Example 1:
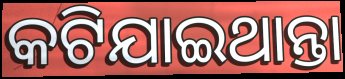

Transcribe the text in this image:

କଟିଯାଇଥାନ୍ତା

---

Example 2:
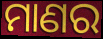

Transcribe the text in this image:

ମାଣର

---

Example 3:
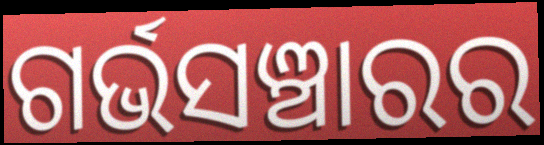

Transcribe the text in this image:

ଗର୍ଭସଞ୍ଚାରର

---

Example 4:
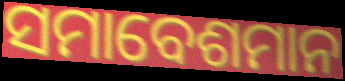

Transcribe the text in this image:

ସମାବେଶମାନ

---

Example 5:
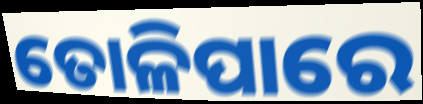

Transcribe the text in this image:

ତୋଳିପାରେ